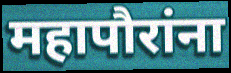
महापौरांना